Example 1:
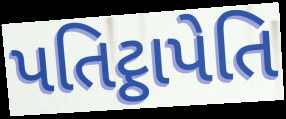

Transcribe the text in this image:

પતિટ્ઠાપેતિ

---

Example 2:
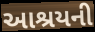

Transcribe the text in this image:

આશ્રયની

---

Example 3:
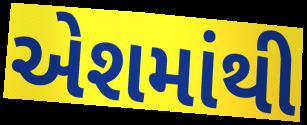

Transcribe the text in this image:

એશમાંથી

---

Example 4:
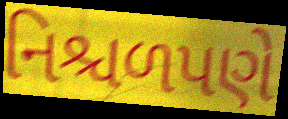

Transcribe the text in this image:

નિશ્ચળપણે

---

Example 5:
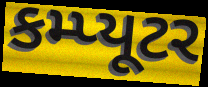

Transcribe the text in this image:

કમ્પ્યૂટર